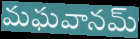
మఘవానమ్